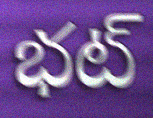
భట్